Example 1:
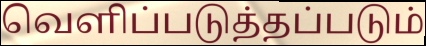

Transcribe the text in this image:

வெளிப்படுத்தப்படும்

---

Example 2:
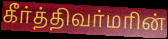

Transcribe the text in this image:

கீர்த்திவர்மரின்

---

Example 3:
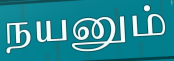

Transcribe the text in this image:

நயனும்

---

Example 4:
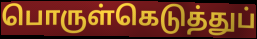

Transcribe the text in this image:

பொருள்கெடுத்துப்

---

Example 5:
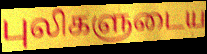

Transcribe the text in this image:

புலிகளுடைய